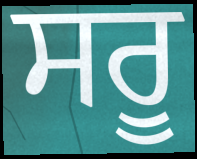
ਸਰੂ